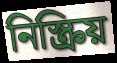
নিস্ক্রিয়